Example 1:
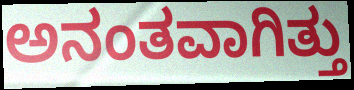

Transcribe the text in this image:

ಅನಂತವಾಗಿತ್ತು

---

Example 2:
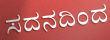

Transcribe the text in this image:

ಸದನದಿಂದ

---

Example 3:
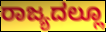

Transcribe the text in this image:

ರಾಜ್ಯದಲ್ಲೂ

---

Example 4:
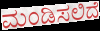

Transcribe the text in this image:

ಮಂಡಿಸಲಿದೆ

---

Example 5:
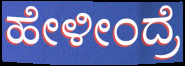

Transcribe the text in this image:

ಹೇಳೀಂದ್ರೆ